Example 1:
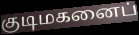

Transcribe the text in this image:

குடிமகனைப்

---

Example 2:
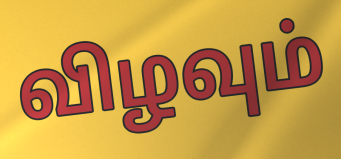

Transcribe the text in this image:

விழவும்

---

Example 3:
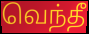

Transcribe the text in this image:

வெந்தீ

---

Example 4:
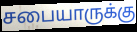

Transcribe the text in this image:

சபையாருக்கு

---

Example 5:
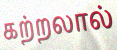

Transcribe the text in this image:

கற்றலால்